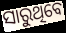
ସାରୁଥିବେ